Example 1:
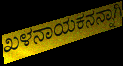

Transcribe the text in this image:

ಖಳನಾಯಕನನ್ನಾಗಿ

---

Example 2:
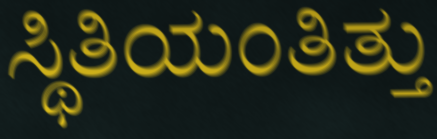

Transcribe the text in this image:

ಸ್ಥಿತಿಯಂತಿತ್ತು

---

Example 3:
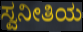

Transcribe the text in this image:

ಸ್ವನೀತಿಯ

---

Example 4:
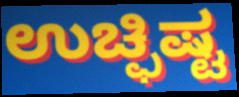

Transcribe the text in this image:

ಉಚ್ಫಿಷ್ಟ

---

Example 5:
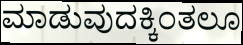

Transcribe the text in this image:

ಮಾಡುವುದಕ್ಕಿಂತಲೂ